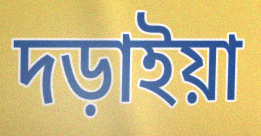
দড়াইয়া